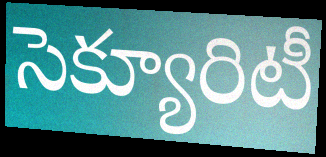
సెక్యూరిటీ